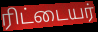
ரிட்டையர்